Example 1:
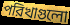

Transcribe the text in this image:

পরিখাগুলো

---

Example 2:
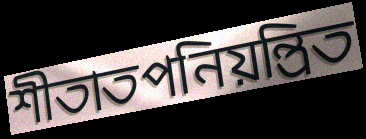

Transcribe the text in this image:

শীতাতপনিয়ন্ত্রিত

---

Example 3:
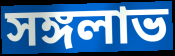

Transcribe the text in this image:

সঙ্গলাভ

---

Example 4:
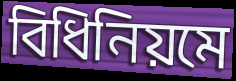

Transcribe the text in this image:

বিধিনিয়মে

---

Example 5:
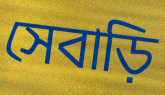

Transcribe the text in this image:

সেবাড়ি